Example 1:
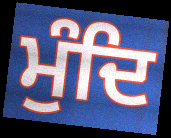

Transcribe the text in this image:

ਮੁੰਦਿ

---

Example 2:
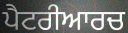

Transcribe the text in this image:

ਪੈਟਰੀਆਰਚ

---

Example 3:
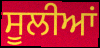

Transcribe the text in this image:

ਸੂਲੀਆਂ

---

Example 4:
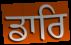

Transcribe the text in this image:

ਡਾਰਿ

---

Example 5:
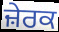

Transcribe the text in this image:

ਜ਼ੇਰਕ